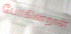
போகின்றாள்